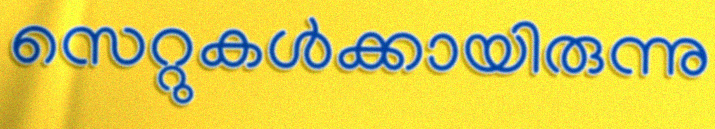
സെറ്റുകൾക്കായിരുന്നു